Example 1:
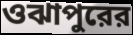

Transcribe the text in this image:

ওঝাপুরের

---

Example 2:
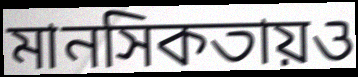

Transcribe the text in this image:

মানসিকতায়ও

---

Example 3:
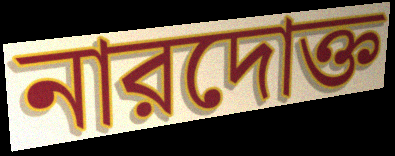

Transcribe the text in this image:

নারদোক্ত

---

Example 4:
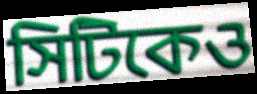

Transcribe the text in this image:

সিটিকেও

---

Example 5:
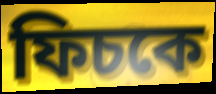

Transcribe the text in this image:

ফিচকে